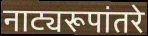
नाट्यरूपांतरे